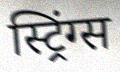
स्ट्रिंग्स